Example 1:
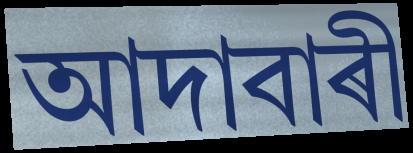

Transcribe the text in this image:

আদাবাৰী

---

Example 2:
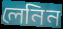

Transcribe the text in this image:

লেনিন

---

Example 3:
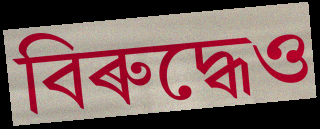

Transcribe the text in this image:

বিৰুদ্ধেও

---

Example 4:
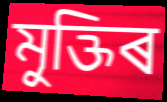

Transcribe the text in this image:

মুক্তিৰ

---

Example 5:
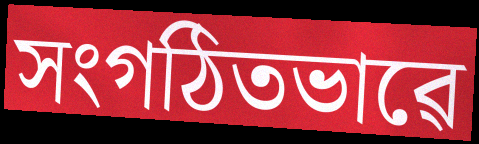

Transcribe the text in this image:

সংগঠিতভাৱে